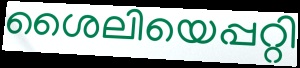
ശൈലിയെപ്പറ്റി